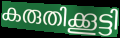
കരുതിക്കൂട്ടി